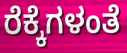
ರೆಕ್ಕೆಗಳಂತೆ